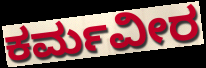
ಕರ್ಮವೀರ